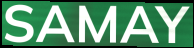
SAMAY